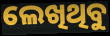
ଲେଖିଥିବୁ